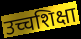
उच्‍चशिक्षा